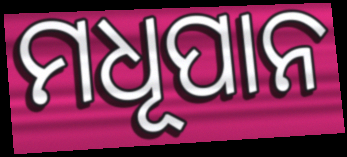
ମଧୂପାନ